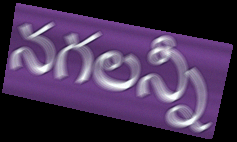
నగలన్నీ